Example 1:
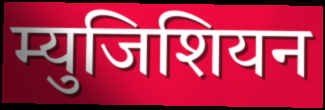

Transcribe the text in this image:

म्‍युजिशियन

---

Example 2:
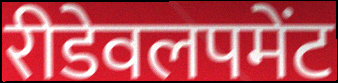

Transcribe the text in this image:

रीडेवलपमेंट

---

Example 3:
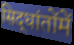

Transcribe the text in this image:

सिद्धांतोंमें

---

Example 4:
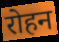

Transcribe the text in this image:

रोहन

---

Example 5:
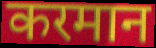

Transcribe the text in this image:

करमान